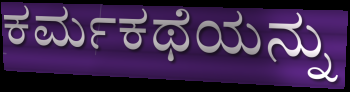
ಕರ್ಮಕಥೆಯನ್ನು